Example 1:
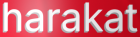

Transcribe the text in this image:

harakat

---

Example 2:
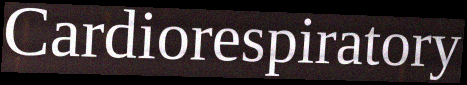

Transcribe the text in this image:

Cardiorespiratory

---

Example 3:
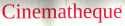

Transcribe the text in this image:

Cinematheque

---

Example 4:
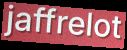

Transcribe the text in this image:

jaffrelot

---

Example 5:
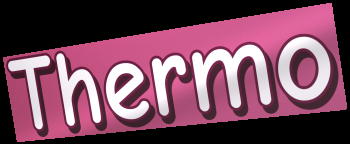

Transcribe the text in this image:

Thermo